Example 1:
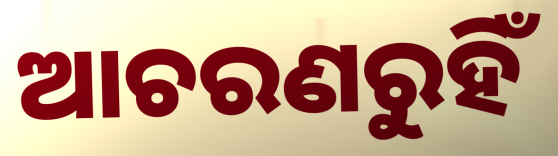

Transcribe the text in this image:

ଆଚରଣରୁହିଁ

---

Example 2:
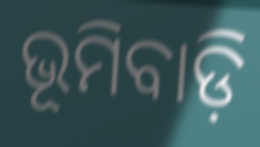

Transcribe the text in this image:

ଭୂମିବାଡ଼ି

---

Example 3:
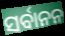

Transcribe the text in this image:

ସର୍ବାନନ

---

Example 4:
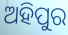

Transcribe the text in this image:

ଅହିପୁର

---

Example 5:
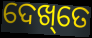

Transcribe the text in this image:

ଦେଖ୍‌ତେ